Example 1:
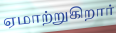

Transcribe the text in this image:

ஏமாற்றுகிறார்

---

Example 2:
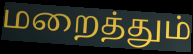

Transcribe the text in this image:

மறைத்தும்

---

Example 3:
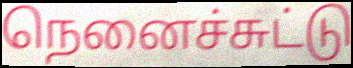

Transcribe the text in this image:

நெனைச்சுட்டு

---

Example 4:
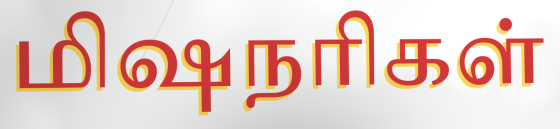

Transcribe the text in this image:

மிஷநரிகள்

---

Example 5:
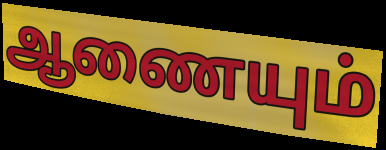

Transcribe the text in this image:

ஆணையும்